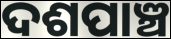
ଦଶପାଞ୍ଚ